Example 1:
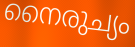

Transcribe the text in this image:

നൈരുച്യം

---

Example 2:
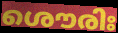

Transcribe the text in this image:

ശൌരിഃ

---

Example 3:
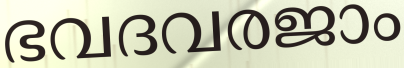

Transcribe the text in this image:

ഭവദവരജാം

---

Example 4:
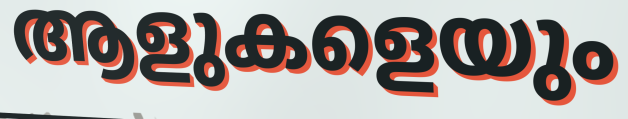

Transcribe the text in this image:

ആളുകളെയും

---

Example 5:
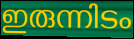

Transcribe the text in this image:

ഇരുന്നിടം